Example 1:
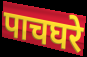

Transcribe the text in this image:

पाचघरे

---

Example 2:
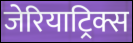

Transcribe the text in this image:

जेरियाट्रिक्स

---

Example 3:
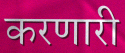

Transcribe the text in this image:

करणारी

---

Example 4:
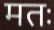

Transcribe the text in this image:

मतः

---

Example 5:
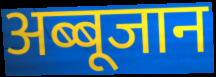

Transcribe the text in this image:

अब्बूजान